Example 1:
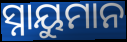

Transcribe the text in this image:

ସ୍ନାୟୁମାନ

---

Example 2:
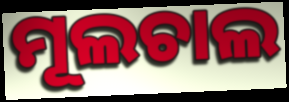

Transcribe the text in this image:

ମୂଲଚାଲ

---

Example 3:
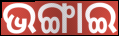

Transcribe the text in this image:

ଭଙ୍ଗାଇ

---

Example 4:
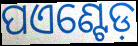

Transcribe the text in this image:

ପଏଣ୍ଟେଡ଼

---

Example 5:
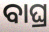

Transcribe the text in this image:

ବାଘ୍ର